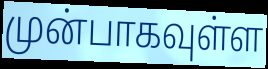
முன்பாகவுள்ள